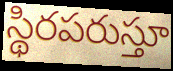
స్థిరపరుస్తూ